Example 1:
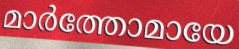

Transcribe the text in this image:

മാർത്തോമായേ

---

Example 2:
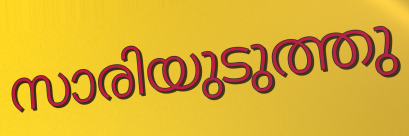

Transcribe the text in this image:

സാരിയുടുത്തു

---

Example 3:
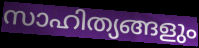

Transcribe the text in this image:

സാഹിത്യങ്ങളും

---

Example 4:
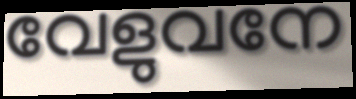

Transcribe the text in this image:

വേളുവനേ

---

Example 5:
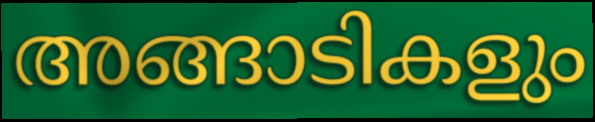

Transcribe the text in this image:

അങ്ങാടികളും